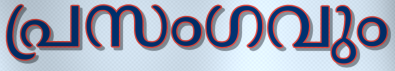
പ്രസംഗവും